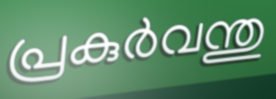
പ്രകുർവന്തു